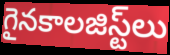
గైనకాలజిస్ట్‌లు